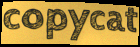
copycat